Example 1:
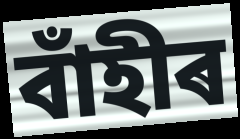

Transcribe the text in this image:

বাঁহীৰ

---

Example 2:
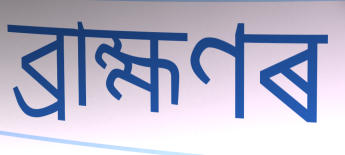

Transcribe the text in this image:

ব্ৰাহ্মণৰ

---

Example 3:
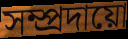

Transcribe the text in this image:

সম্প্ৰদায়ো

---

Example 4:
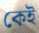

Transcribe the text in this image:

কেই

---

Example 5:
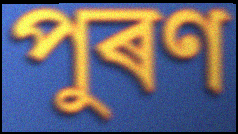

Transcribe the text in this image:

পুৰণ